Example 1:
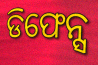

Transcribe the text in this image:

ଡିଫେନ୍ସ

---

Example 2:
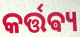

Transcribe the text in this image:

କର୍ତ୍ତଵ୍ୟ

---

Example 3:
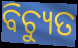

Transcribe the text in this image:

ବିଚ୍ୟୁତ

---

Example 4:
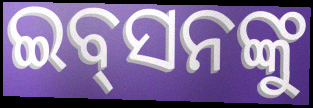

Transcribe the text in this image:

ଇବ୍‌ସନଙ୍କୁ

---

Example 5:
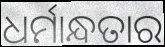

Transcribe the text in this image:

ଧର୍ମାନ୍ଧତାର